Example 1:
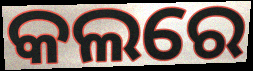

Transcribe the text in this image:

କଲରେ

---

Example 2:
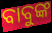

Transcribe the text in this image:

ବାବୁଙ୍କ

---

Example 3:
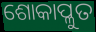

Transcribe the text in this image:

ଶୋକାପ୍ଳୁତ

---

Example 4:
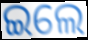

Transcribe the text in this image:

ଇଲେ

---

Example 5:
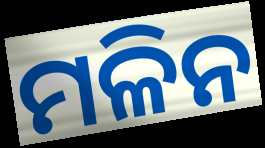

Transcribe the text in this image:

ମଳିନ